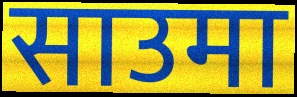
साउमा